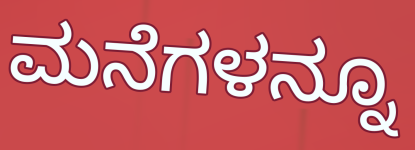
ಮನೆಗಳನ್ನೂ